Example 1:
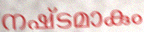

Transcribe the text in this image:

നഷ്‌ടമാകും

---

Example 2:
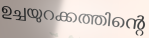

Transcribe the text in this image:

ഉച്ചയുറക്കത്തിന്റെ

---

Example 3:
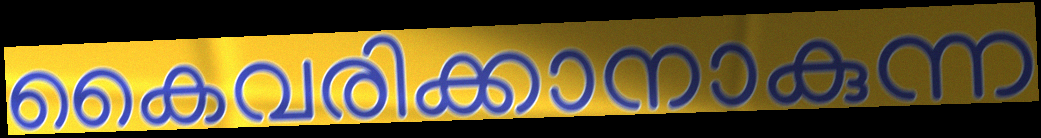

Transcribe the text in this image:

കൈവരിക്കാനാകുന്ന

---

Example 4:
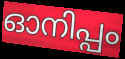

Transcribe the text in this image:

ഓനിപ്പം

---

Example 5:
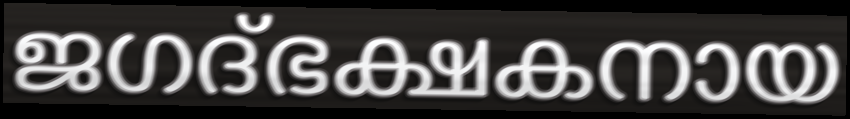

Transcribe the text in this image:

ജഗദ്ഭക്ഷകനായ